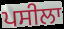
ਪਸੀਲਾ